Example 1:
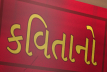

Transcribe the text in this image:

કવિતાનો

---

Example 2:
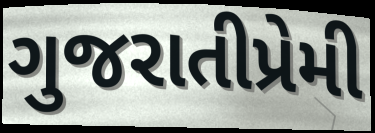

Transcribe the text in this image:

ગુજરાતીપ્રેમી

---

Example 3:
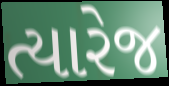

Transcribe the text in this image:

ત્યારેજ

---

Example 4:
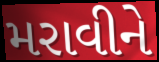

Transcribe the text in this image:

મરાવીને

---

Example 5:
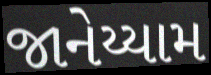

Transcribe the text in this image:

જાનેય્યામ